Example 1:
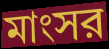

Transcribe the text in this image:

মাংসর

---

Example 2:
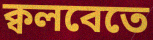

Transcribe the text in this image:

ক্বলবেতে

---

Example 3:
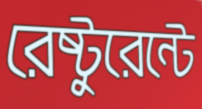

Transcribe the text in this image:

রেষ্টুরেন্টে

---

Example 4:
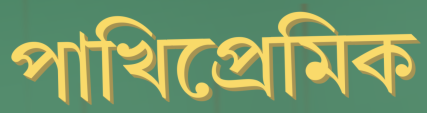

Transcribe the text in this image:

পাখিপ্রেমিক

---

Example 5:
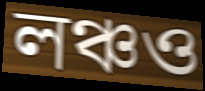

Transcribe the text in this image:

লঞ্চও